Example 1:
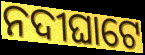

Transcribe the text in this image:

ନଦୀଘାଟେ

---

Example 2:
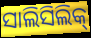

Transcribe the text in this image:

ସାଲିସିଲିକ୍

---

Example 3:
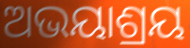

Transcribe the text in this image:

ଅଭୟାଶ୍ରୟ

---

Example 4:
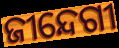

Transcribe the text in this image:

ଜୀନ୍ଦେଗୀ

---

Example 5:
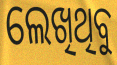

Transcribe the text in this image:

ଲେଖିଥିବୁ